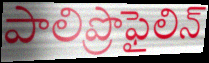
పాలిప్రొఫైలిన్